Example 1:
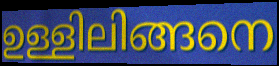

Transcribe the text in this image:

ഉള്ളിലിങ്ങനെ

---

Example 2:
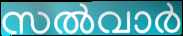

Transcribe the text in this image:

സൽവാർ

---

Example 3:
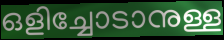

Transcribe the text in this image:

ഒളിച്ചോടാനുള്ള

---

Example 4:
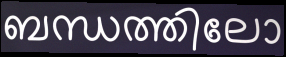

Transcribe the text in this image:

ബന്ധത്തിലോ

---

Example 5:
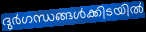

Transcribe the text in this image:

ദുർഗന്ധങ്ങൾക്കിടയിൽ